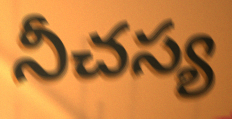
నీచస్య